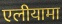
एलीयामा